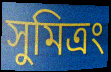
সুমিত্রং